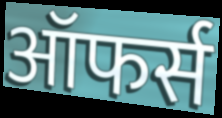
ऑफर्स